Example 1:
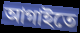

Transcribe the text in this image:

আগাইতে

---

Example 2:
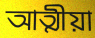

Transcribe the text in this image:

আত্মীয়া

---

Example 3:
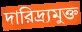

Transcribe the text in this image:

দারিদ্র্যমুক্ত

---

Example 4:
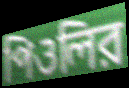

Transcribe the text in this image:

পিওলির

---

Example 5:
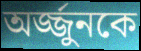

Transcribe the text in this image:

অর্জ্জুনকে